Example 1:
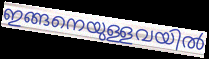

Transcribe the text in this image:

ഇങ്ങനെയുള്ളവയിൽ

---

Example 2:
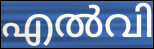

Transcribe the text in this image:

എൽവി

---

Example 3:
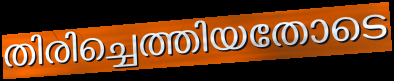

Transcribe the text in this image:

തിരിച്ചെത്തിയതോടെ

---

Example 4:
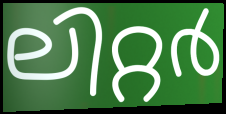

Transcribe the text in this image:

ലിറ്റർ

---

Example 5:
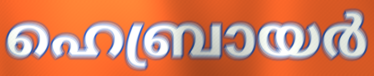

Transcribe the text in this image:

ഹെബ്രായർ